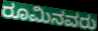
ರೂಮಿನವರು